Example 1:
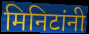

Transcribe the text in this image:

मिनिटांनी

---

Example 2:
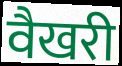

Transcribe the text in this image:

वैखरी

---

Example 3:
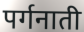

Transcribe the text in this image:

पर्गनाती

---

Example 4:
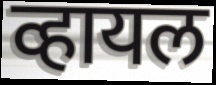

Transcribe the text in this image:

व्हायल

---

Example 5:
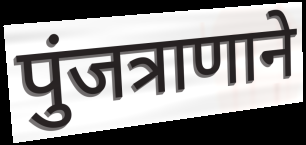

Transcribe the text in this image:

पुंजत्राणाने